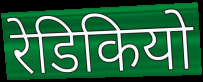
रेडिकियो